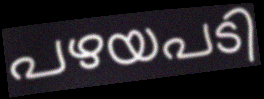
പഴയപടി